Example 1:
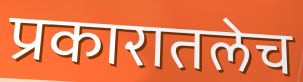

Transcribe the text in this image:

प्रकारातलेच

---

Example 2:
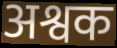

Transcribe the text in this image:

अश्वक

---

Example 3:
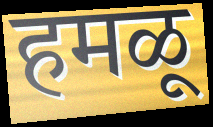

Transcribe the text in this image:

हमळू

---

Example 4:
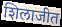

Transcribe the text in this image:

शिलाजीत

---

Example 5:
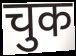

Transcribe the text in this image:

चुक